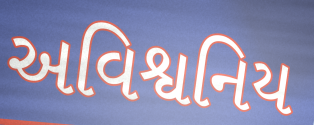
અવિશ્વનિય